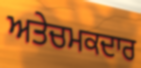
ਅਤੇਚਮਕਦਾਰ